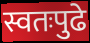
स्वतःपुढे